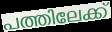
പത്തിലേക്ക്